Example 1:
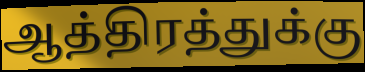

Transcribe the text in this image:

ஆத்திரத்துக்கு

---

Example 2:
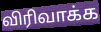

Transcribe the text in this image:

விரிவாக்க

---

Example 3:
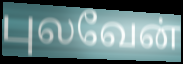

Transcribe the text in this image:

புலவேன்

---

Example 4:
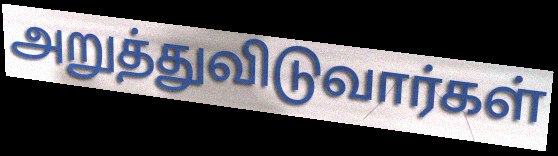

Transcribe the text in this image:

அறுத்துவிடுவார்கள்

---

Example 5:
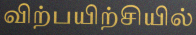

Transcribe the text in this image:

விற்பயிற்சியில்